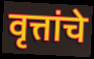
वृत्तांचे